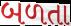
બળતા